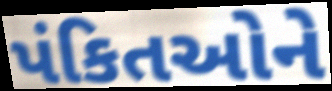
પંકિતઓને